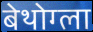
बेथोग्ला